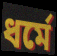
ধর্মে